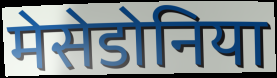
मेसेडोनिया